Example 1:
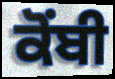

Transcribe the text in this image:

ਕੋਂਬੀ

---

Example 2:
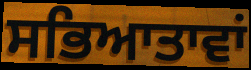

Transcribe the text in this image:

ਸਭਿਆਤਾਵਾਂ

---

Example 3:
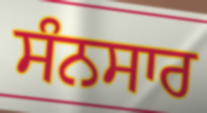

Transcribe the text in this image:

ਸੰਨਸਾਰ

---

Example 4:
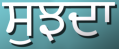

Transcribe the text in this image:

ਸੁਝਦਾ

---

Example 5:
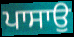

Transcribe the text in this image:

ਪਾਸਾਉ